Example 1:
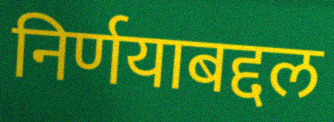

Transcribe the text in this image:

निर्णयाबद्दल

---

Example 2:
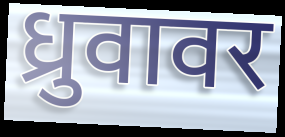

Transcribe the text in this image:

ध्रुवावर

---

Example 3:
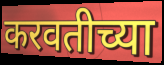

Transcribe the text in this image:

करवतीच्या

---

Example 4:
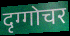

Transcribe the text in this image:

दृग्गोचर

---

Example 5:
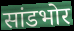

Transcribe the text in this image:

सांडभोर